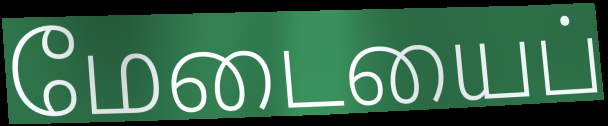
மேடையைப்